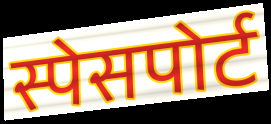
स्पेसपोर्ट